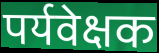
पर्यवेक्षक